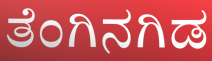
ತೆಂಗಿನಗಿಡ